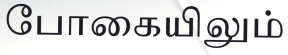
போகையிலும்